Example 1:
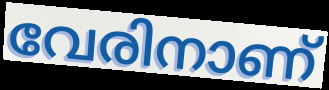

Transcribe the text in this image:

വേരിനാണ്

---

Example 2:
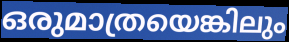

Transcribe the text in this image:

ഒരുമാത്രയെങ്കിലും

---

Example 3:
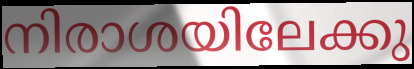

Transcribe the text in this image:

നിരാശയിലേക്കു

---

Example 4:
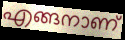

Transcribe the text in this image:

എങ്ങനാണ്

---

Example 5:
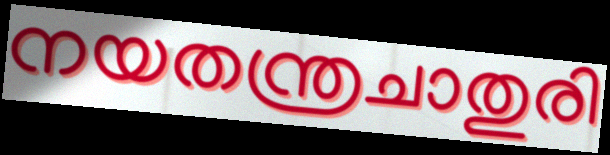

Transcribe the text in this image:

നയതന്ത്രചാതുരി